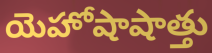
యెహోషాషాత్తు